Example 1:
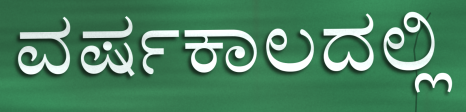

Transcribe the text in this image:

ವರ್ಷಕಾಲದಲ್ಲಿ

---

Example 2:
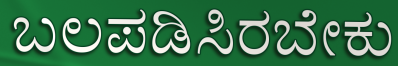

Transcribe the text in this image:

ಬಲಪಡಿಸಿರಬೇಕು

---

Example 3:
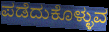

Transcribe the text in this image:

ಪಡೆದುಕೊಳ್ಳುವ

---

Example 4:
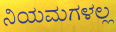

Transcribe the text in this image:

ನಿಯಮಗಳಲ್ಲ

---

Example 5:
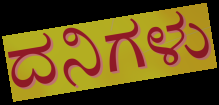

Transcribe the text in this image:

ದನಿಗಳು